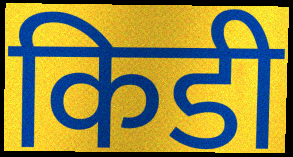
किडी